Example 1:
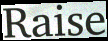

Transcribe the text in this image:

Raise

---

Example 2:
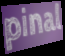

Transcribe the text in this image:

pinal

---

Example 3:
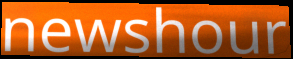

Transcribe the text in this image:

newshour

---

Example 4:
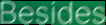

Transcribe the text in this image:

Besides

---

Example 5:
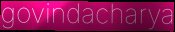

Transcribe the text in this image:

govindacharya